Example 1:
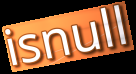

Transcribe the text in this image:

isnull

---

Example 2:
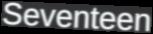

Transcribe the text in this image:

Seventeen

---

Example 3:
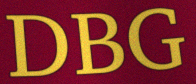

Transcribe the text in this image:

DBG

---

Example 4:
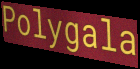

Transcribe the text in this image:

Polygala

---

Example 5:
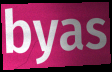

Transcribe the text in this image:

byas